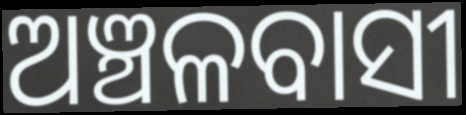
ଅଞ୍ଚଳବାସୀ